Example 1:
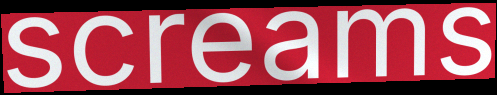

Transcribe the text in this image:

screams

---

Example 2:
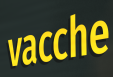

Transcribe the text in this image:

vacche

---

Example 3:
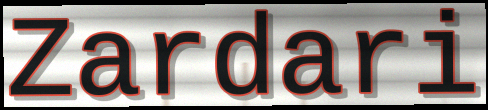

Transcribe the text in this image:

Zardari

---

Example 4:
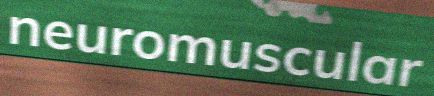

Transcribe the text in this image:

neuromuscular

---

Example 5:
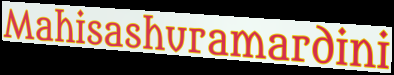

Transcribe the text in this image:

Mahisashuramardini